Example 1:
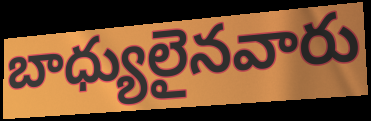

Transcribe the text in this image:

బాధ్యులైనవారు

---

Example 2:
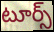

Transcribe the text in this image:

టూర్స్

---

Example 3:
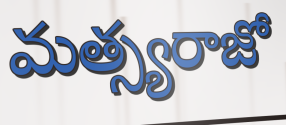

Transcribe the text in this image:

మత్స్యరాజో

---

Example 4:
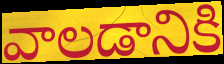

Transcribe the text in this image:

వాలడానికి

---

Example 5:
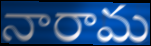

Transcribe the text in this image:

నారామ